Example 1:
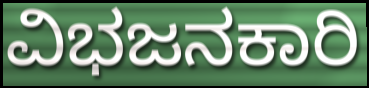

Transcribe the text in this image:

ವಿಭಜನಕಾರಿ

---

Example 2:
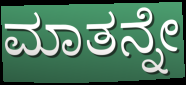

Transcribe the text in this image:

ಮಾತನ್ನೇ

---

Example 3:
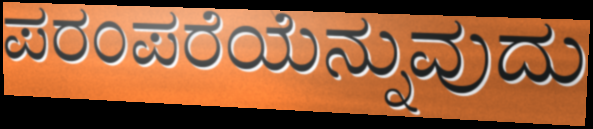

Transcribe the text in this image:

ಪರಂಪರೆಯೆನ್ನುವುದು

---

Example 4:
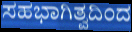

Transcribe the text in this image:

ಸಹಭಾಗಿತ್ವದಿಂದ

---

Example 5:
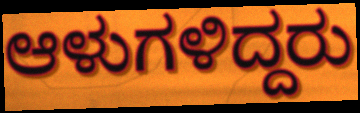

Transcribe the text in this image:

ಆಳುಗಳಿದ್ದರು